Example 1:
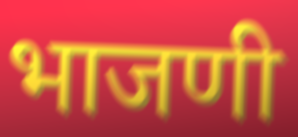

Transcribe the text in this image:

भाजणी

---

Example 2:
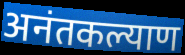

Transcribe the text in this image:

अनंतकल्याण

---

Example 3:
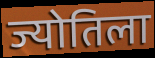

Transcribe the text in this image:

ज्योतिला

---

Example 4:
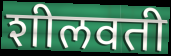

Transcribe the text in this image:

शीलवती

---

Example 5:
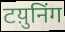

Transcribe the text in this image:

टय़ुनिंग